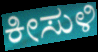
ಕೀಸುಳಿ